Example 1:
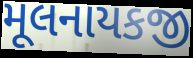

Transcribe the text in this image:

મૂલનાયકજી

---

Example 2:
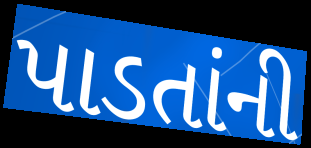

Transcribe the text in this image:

પાડતાંની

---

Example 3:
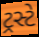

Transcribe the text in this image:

ટ્રસ્ટે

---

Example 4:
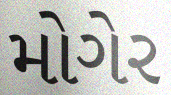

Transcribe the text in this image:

મોગેર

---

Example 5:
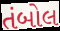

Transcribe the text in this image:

તંબોલ